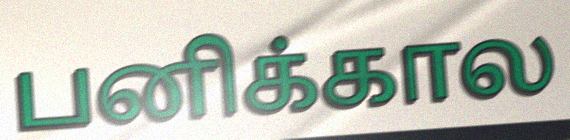
பனிக்கால